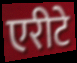
एरीटे